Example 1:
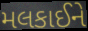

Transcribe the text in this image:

મલકાઈને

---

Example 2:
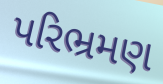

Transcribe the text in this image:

પરિભ્રમણ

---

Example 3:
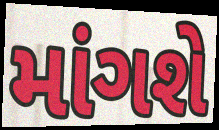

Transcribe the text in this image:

માંગશે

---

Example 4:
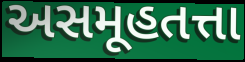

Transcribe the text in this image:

અસમૂહતત્તા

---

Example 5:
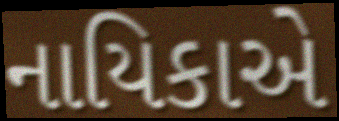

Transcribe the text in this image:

નાયિકાએ